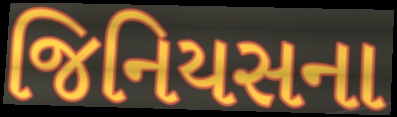
જિનિયસના